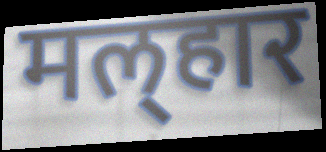
मल्हार